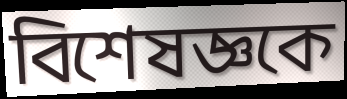
বিশেষজ্ঞকে